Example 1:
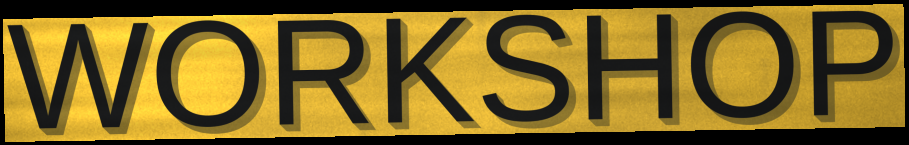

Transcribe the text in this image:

WORKSHOP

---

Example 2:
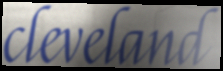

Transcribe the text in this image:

cleveland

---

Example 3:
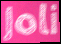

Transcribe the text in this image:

Joli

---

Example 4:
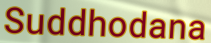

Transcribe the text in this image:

Suddhodana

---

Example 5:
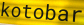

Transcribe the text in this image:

kotobar